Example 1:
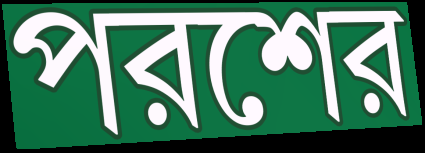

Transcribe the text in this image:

পরশের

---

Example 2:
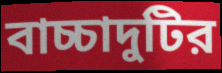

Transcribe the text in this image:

বাচ্চাদুটির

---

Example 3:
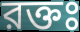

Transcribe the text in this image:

রক্তঃ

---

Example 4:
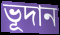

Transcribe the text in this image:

ভূদান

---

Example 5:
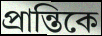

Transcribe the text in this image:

প্রান্তিকে